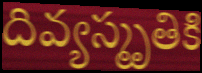
దివ్యస్మృతికి